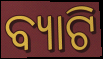
ବ୍ୟାଟି